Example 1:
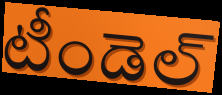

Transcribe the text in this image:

టీండెల్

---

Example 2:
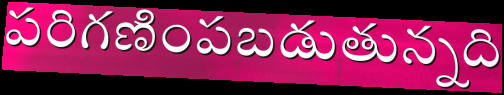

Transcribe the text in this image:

పరిగణింపబడుతున్నది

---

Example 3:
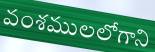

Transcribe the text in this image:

వంశములలోగాని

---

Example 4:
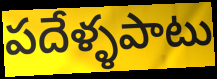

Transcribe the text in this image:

పదేళ్ళపాటు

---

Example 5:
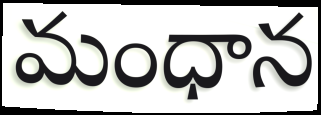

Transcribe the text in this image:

మంధాన